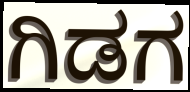
ಗಿಡಗ